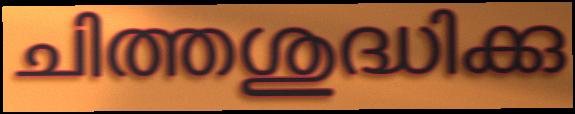
ചിത്തശുദ്ധിക്കു